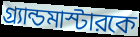
গ্র্যান্ডমাস্টারকে